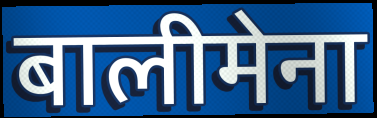
बालीमेना